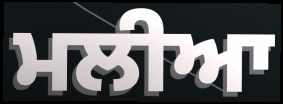
ਮਲੀਆ